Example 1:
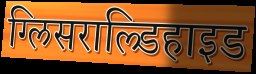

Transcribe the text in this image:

ग्लिसराल्डिहाइड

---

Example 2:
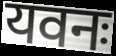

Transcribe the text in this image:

यवनः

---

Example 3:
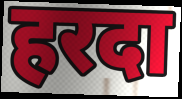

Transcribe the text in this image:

हरदा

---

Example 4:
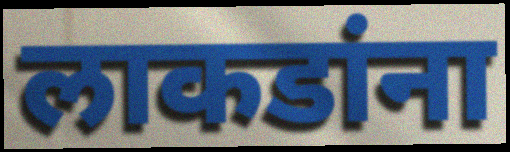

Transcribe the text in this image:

लाकडांना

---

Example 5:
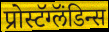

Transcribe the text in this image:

प्रोस्टॅग्लॅंडिन्स